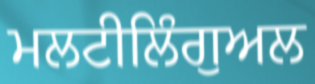
ਮਲਟੀਲਿੰਗੁਅਲ